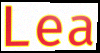
Lea